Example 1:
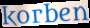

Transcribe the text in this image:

korben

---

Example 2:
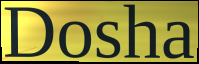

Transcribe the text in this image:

Dosha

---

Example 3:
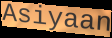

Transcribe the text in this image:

Asiyaan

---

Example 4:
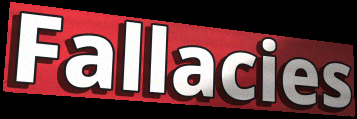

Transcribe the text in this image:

Fallacies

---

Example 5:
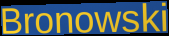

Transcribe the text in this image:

Bronowski